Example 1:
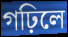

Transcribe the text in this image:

গঢ়িলে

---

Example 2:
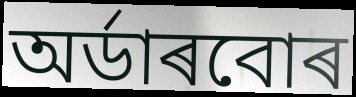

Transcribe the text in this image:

অৰ্ডাৰবোৰ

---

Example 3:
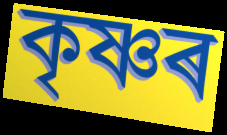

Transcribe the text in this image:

কৃষ্ণৰ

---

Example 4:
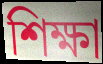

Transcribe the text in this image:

শিক্ষা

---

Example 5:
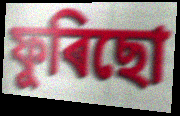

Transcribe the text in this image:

ফুৰিছো